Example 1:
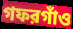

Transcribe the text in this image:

গফরগাঁও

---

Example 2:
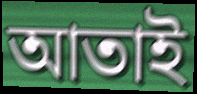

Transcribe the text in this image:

আতাই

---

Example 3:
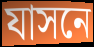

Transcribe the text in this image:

যাসনে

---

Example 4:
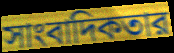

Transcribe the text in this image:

সাংবাদিকতার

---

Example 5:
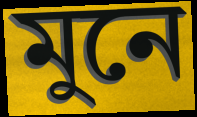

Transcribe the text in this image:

মুনে